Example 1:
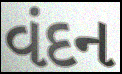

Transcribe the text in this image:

વંદન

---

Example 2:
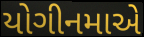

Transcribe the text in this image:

યોગીનમાએ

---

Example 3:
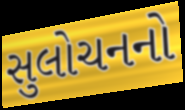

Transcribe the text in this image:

સુલોચનનો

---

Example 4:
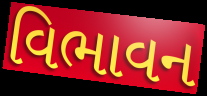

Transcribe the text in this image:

વિભાવન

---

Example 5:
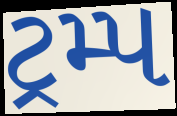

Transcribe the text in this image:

ટ્રમ્પ